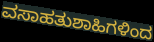
ವಸಾಹತುಶಾಹಿಗಳಿಂದ